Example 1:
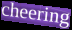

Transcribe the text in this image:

cheering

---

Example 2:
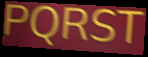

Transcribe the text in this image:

PQRST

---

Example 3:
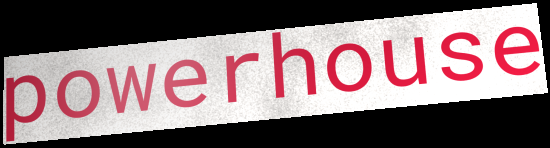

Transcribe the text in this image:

powerhouse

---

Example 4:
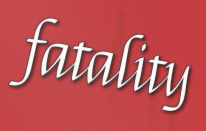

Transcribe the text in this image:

fatality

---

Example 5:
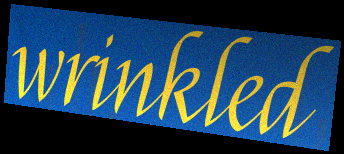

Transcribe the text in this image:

wrinkled